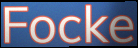
Focke